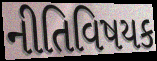
નીતિવિષયક